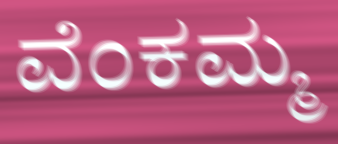
ವೆಂಕಮ್ಮ